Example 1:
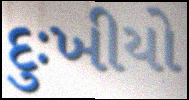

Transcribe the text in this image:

દુઃખીયો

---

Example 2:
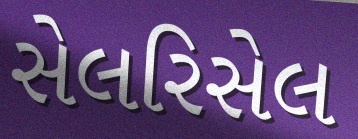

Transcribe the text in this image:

સેલરિસેલ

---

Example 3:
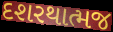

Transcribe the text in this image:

દશરથાત્મજ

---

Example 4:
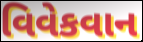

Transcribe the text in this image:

વિવેકવાન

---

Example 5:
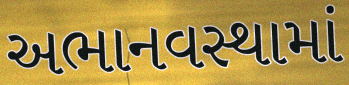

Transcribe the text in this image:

અભાનવસ્થામાં